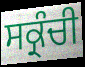
ਸਕ੍ਰੰਚੀ